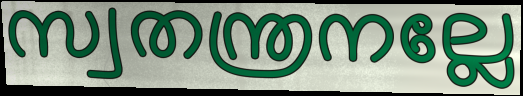
സ്വതന്ത്രനല്ലേ